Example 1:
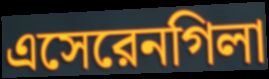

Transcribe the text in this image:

এসেরেনগিলা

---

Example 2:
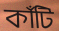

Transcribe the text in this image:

কাঁটি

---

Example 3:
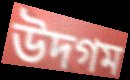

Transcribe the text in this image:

উদগম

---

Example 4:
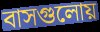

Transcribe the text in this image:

বাসগুলোয়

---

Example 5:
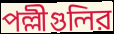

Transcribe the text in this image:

পল্লীগুলির